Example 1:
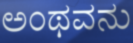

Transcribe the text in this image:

ಅಂಥವನು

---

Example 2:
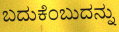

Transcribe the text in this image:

ಬದುಕೆಂಬುದನ್ನು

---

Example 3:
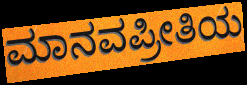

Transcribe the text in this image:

ಮಾನವಪ್ರೀತಿಯ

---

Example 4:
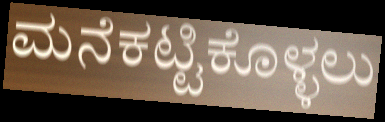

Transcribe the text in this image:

ಮನೆಕಟ್ಟಿಕೊಳ್ಳಲು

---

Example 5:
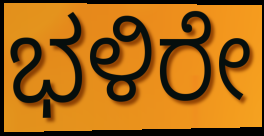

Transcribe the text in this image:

ಭಳಿರೇ